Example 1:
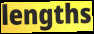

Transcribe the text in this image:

lengths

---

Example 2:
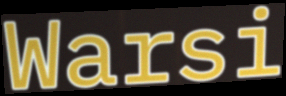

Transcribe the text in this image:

Warsi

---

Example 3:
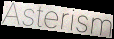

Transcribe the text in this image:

Asterism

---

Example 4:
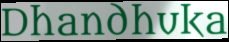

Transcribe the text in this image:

Dhandhuka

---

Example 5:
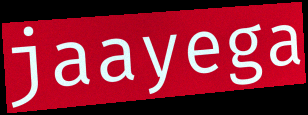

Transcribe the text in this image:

jaayega